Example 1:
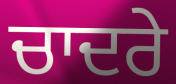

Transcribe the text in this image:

ਚਾਦਰੇ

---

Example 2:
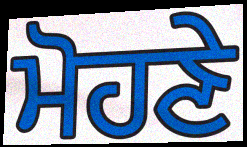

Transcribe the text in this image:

ਮੋਹਣੇ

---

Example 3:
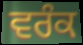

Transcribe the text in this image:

ਵਰੰਕ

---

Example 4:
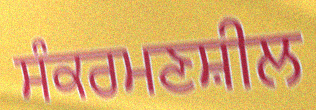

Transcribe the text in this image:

ਸੰਕਰਮਣਸ਼ੀਲ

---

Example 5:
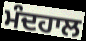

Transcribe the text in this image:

ਮੰਦਹਾਲ